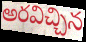
అరవిచ్చిన